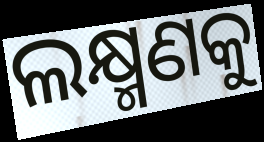
ଲକ୍ଷ୍ମଣକୁ